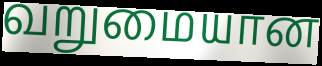
வறுமையான